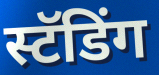
स्टॅडिंग